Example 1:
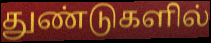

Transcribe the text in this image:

துண்டுகளில்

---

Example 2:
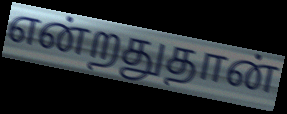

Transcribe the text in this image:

என்றதுதான்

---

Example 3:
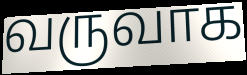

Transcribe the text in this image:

வருவாக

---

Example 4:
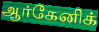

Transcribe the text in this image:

ஆர்கேனிக்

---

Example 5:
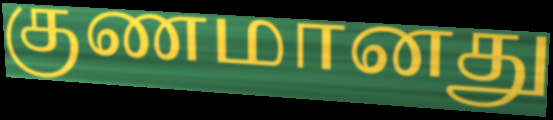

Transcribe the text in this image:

குணமானது